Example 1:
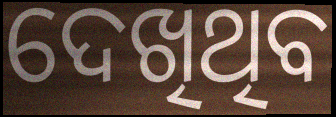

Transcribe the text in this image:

ଦେଖିଥିବ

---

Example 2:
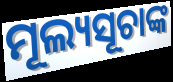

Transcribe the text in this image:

ମୂଲ୍ୟସୂଚାଙ୍କ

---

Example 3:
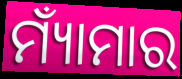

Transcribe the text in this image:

ମ୍ୟାଁମାର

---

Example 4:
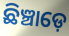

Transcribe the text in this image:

ଛିଞ୍ଚାଡ଼େ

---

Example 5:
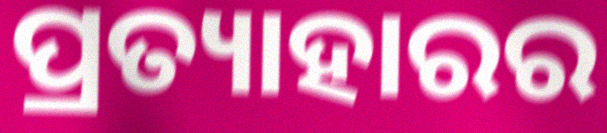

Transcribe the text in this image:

ପ୍ରତ୍ୟାହାରର